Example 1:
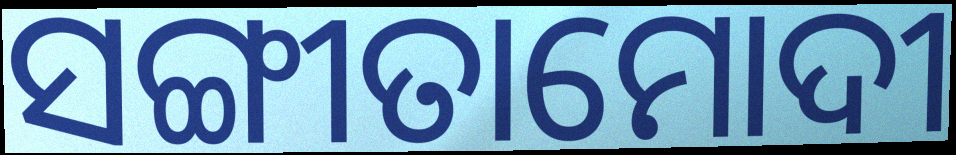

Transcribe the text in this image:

ସଙ୍ଗୀତାମୋଦୀ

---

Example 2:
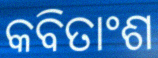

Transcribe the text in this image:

କବିତାଂଶ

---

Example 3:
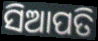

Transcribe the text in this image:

ସିଆପତି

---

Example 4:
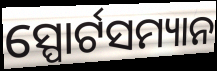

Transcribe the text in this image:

ସ୍ପୋର୍ଟସମ୍ୟାନ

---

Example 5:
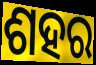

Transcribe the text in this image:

ଶହର